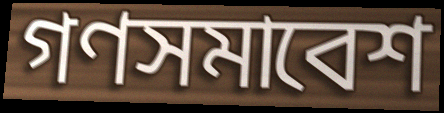
গণসমাবেশ